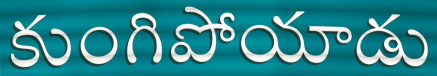
కుంగిపోయాడు